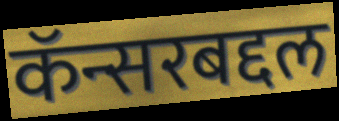
कॅन्सरबद्दल